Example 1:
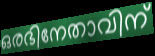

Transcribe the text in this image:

ഒരഭിനേതാവിന്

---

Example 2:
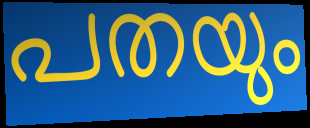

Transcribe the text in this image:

പതയും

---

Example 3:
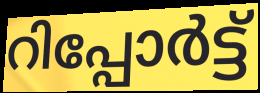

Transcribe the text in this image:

റിപ്പോർട്ട്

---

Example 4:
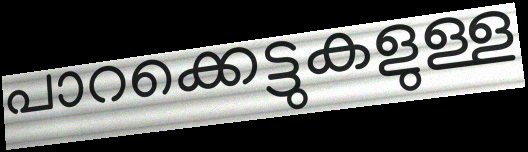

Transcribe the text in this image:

പാറക്കെട്ടുകളുള്ള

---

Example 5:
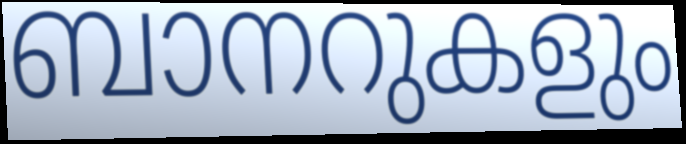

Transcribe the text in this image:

ബാനറുകളും